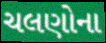
ચલણોના